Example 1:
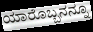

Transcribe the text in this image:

ಯಾರೊಬ್ಬನನ್ನೂ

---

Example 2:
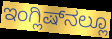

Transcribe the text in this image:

ಇಂಗ್ಲಿಷ್‌ನಲ್ಲೂ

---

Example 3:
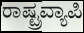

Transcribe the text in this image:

ರಾಷ್ಟ್ರವ್ಯಾಪಿ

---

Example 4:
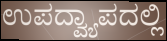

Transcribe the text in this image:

ಉಪದ್ವ್ಯಾಪದಲ್ಲಿ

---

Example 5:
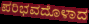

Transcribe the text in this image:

ಪರಿಭವದೊಳಾದ